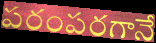
పరంపరగానే